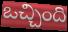
ఒచ్చింది